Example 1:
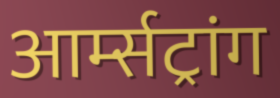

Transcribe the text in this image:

आर्म्सट्रांग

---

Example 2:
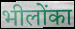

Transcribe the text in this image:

भीलोंका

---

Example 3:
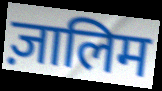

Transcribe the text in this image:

ज़ालिम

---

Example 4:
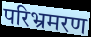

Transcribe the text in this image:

परिभ्रमरण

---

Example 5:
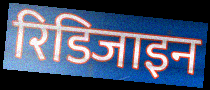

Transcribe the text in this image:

रिडिजाइन